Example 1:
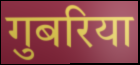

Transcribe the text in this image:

गुबरिया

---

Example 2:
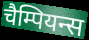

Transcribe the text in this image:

चैम्पियन्स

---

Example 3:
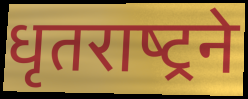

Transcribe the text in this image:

धृतराष्ट्रने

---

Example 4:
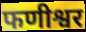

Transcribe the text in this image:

फणीश्वर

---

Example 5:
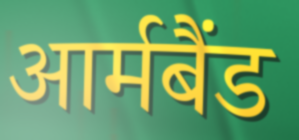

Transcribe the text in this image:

आर्मबैंड